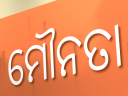
ମୌନତା